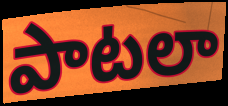
పాటలా